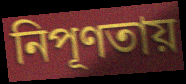
নিপূণতায়